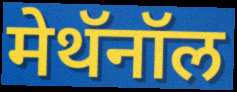
मेथॅनॉल